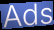
Ads